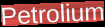
Petrolium